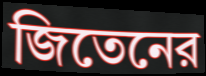
জিতেনের